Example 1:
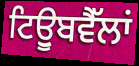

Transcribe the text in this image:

ਟਿਊੁਬਵੈੱਲਾਂ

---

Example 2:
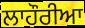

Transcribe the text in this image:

ਲਾਹੌਰੀਆ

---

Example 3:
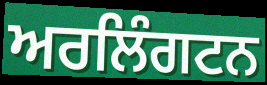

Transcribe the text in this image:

ਅਰਲਿੰਗਟਨ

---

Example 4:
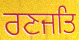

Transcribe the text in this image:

ਰਣਜਤਿ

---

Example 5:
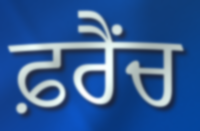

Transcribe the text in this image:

ਫ਼ਰੈਂਚ